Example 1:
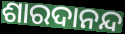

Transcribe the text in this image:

ଶାରଦାନନ୍ଦ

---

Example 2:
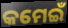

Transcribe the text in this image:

କମେଇଁ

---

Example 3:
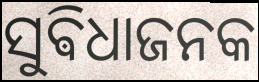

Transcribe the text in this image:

ସୁଵିଧାଜନକ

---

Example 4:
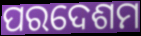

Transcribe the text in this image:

ପରଦେଶମ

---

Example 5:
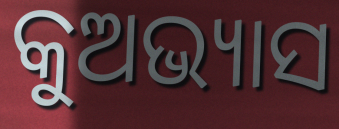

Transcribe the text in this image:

କୁଅଭ୍ୟାସ